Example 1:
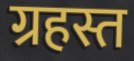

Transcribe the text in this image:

ग्रहस्त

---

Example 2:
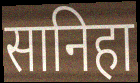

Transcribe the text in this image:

सानिहा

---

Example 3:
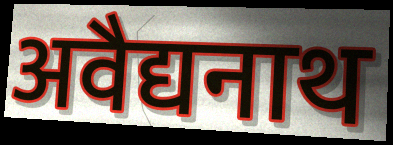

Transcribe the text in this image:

अवैद्यनाथ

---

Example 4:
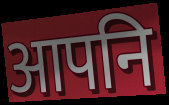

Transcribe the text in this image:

आपनि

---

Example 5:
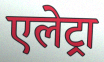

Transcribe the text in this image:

एलेट्रा